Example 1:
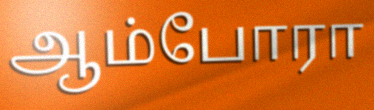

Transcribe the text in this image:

ஆம்போரா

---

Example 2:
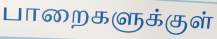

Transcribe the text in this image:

பாறைகளுக்குள்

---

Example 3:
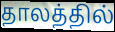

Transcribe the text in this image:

தாலத்தில்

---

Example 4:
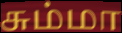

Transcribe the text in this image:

சும்மா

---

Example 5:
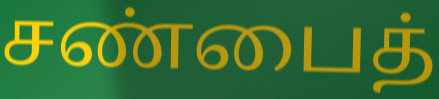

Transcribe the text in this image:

சண்பைத்